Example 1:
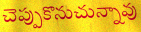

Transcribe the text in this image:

చెప్పుకొనుచున్నావు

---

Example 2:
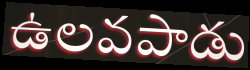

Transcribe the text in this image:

ఉలవపాడు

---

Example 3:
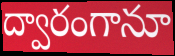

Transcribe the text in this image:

ద్వారంగానూ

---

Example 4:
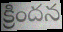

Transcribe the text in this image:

క్రిందన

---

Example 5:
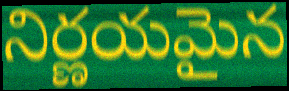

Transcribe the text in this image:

నిర్ణయమైన